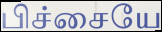
பிச்சையே